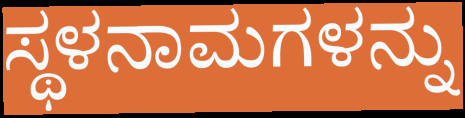
ಸ್ಥಳನಾಮಗಳನ್ನು